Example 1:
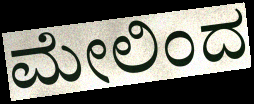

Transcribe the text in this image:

ಮೇಲಿಂದ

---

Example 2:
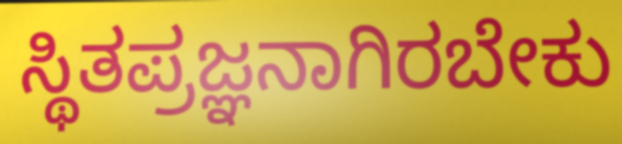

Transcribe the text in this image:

ಸ್ಥಿತಪ್ರಜ್ಞನಾಗಿರಬೇಕು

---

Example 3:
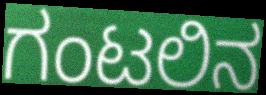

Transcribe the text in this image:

ಗಂಟಲಿನ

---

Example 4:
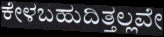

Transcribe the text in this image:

ಕೇಳಬಹುದಿತ್ತಲ್ಲವೇ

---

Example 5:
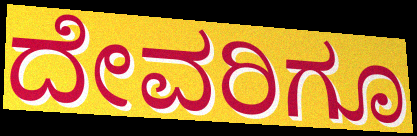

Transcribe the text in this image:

ದೇವರಿಗೂ